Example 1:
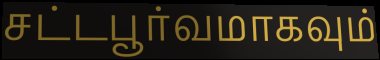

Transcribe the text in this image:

சட்டபூர்வமாகவும்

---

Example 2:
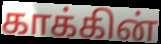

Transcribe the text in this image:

காக்கின்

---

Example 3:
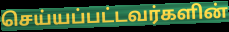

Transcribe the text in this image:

செய்யப்பட்டவர்களின்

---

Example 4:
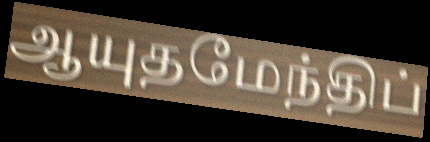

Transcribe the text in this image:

ஆயுதமேந்திப்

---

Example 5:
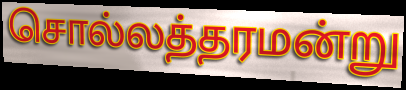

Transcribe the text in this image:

சொல்லத்தரமன்று